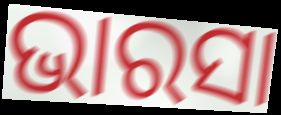
ଭାରସା